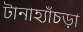
টানাহ্যাঁচড়া